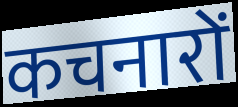
कचनारों